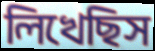
লিখেছিস